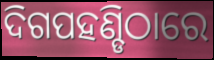
ଦିଗପହଣ୍ଡିଠାରେ